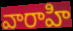
వారాహి